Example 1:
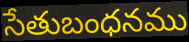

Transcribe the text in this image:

సేతుబంధనము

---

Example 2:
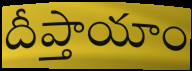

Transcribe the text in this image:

దీప్తాయాం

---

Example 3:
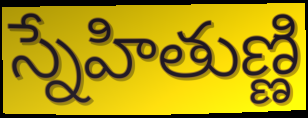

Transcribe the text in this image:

స్నేహితుణ్ణి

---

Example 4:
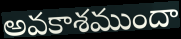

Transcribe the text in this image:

అవకాశముందా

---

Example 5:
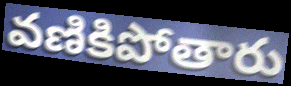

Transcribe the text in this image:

వణికిపోతారు